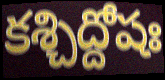
కశ్చిద్దోషః